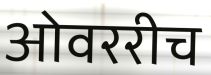
ओवररीच